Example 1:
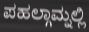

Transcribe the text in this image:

ಪಹಲ್ಗಾಮ್ನಲ್ಲಿ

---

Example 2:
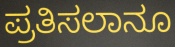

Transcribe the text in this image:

ಪ್ರತಿಸಲಾನೂ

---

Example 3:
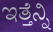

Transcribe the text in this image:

ಇತ್ತೆನ್ನಿ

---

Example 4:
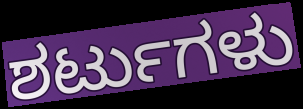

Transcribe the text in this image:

ಶರ್ಟುಗಳು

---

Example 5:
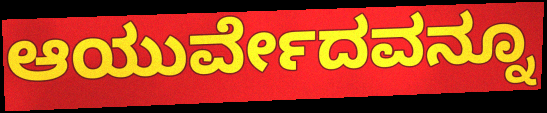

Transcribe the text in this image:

ಆಯುರ್ವೇದವನ್ನೂ